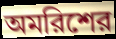
অমরিশের